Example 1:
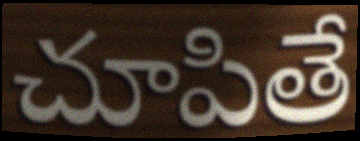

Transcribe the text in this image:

చూపితే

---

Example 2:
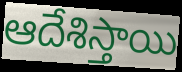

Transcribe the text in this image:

ఆదేశిస్తాయి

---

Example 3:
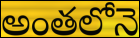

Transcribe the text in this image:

అంతలోనె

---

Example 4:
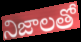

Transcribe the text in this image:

నిజాలతో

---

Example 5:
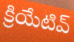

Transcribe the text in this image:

క్రియేటివ్